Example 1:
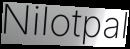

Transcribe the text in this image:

Nilotpal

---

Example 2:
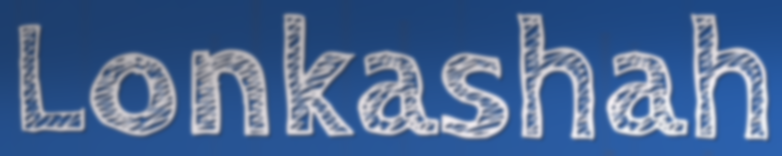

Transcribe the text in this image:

Lonkashah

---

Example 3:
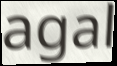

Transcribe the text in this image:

agal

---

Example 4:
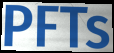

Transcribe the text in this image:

PFTs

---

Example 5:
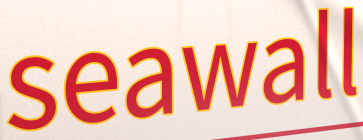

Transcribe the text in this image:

seawall